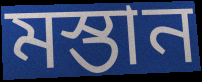
মস্তান